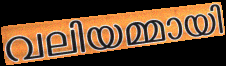
വലിയമ്മായി